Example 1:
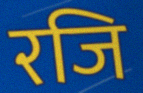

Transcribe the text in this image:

रजि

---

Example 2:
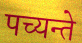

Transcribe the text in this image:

पच्यन्ते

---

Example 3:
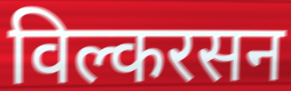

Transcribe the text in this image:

विल्करसन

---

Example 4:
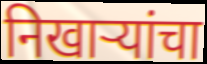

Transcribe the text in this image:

निखार्‍यांचा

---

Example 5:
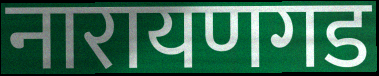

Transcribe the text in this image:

नारायणगड